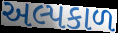
અલ્પકાળ